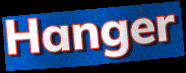
Hanger